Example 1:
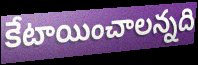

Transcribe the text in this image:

కేటాయించాలన్నది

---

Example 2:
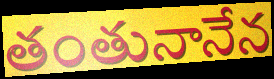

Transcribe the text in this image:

తంతునానేన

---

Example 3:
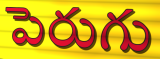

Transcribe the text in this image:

పెరుగు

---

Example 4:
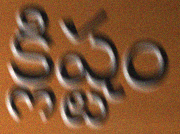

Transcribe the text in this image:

క్లిష్టం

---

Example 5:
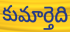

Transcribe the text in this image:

కుమార్తెది